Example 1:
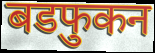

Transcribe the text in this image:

बडफुकन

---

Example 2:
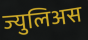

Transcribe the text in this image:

ज्युलिअस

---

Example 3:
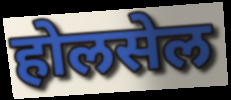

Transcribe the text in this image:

होलसेल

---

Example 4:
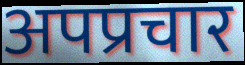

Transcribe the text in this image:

अपप्रचार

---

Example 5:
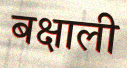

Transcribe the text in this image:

बक्षाली